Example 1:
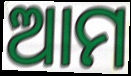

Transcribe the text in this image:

ଆମ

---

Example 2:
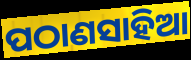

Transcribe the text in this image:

ପଠାଣସାହିଆ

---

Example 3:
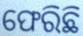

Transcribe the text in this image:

ଫେରିଛି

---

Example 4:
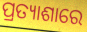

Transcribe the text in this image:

ପ୍ରତ୍ୟାଶାରେ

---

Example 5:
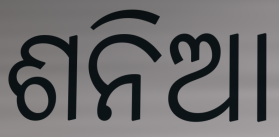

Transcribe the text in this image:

ଶନିଆ